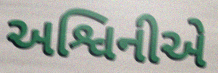
અશ્વિનીએ